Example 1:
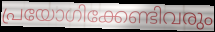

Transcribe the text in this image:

പ്രയോഗിക്കേണ്ടിവരും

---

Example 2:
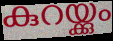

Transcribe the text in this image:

കുറയ്ക്കും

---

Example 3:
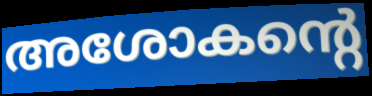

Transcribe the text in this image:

അശോകന്റെ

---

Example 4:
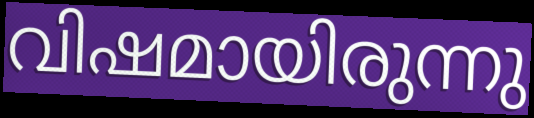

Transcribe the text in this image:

വിഷമായിരുന്നു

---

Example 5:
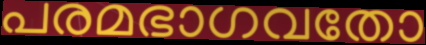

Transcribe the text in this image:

പരമഭാഗവതോ